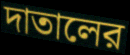
দাতালের